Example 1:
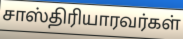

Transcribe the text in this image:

சாஸ்திரியாரவர்கள்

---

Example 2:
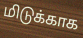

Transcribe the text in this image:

மிடுக்காக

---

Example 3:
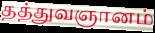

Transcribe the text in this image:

தத்துவஞானம்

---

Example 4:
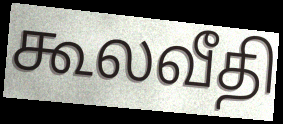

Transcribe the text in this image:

கூலவீதி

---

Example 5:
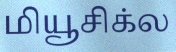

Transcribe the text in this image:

மியூசிக்ல